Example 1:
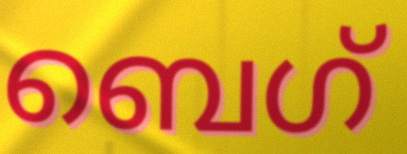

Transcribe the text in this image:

ബെഗ്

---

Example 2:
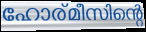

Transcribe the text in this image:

ഹോര്മീസിന്റെ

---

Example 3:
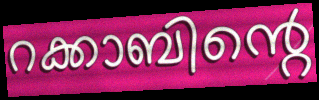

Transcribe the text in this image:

റക്കാബിന്റെ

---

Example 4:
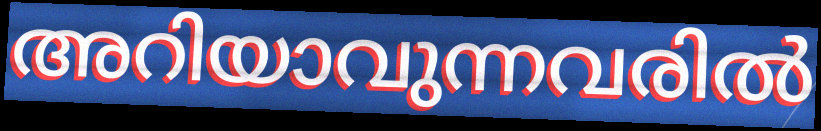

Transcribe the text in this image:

അറിയാവുന്നവരിൽ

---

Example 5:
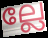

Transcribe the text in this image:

ല്ലേ